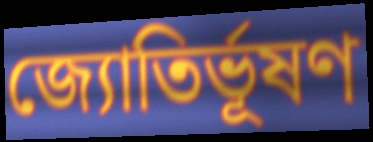
জ্যোতির্ভূষণ